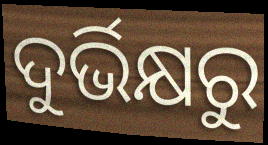
ଦୁର୍ଭିକ୍ଷରୁ